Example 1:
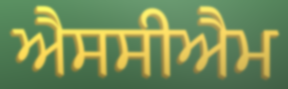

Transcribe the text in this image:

ਐਸਸੀਐਮ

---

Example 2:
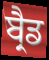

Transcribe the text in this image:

ਬ੍ਰੈਡ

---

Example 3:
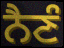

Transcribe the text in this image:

ਨੈਣੰ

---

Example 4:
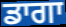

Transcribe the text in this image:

ਡਾਗਾ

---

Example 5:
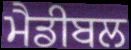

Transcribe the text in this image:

ਮੈਡੀਬਲ